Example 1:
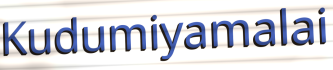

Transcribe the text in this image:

Kudumiyamalai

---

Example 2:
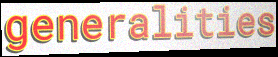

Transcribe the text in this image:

generalities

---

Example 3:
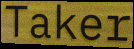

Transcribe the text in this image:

Taker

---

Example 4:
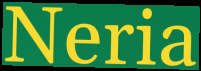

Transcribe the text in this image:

Neria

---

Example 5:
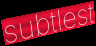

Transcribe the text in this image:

subtlest